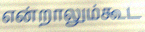
என்றாலும்கூட